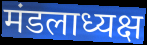
मंडलाध्यक्ष